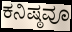
ಕನಿಷ್ಠವೂ